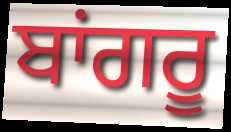
ਬਾਂਗਰੂ